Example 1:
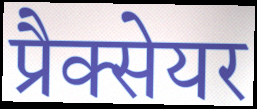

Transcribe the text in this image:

प्रैक्सेयर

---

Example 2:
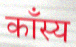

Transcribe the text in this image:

काँस्य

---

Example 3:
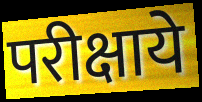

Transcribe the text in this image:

परीक्षाये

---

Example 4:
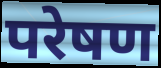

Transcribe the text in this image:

परेषण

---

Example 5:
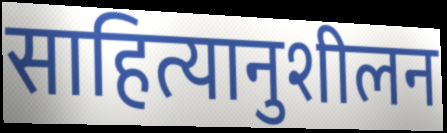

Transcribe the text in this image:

साहित्यानुशीलन